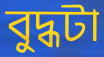
বুদ্ধটা